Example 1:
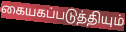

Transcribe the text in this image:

கையகப்படுத்தியும்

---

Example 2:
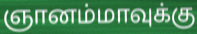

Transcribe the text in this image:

ஞானம்மாவுக்கு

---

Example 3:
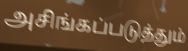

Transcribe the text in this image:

அசிங்கப்படுத்தும்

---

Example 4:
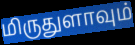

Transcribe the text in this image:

மிருதுளாவும்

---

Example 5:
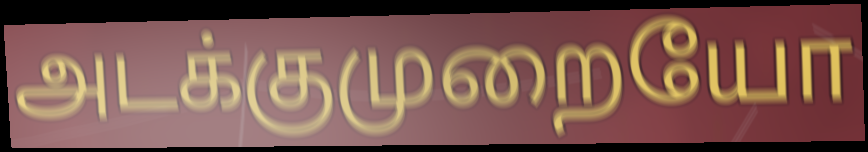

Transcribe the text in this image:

அடக்குமுறையோ